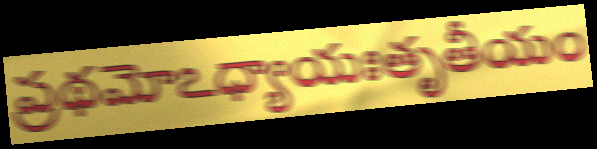
ప్రథమోఽధ్యాయఃతృతీయం